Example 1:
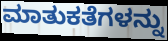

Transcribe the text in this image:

ಮಾತುಕತೆಗಳನ್ನು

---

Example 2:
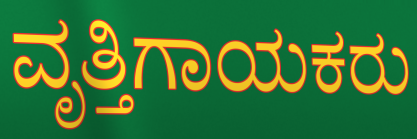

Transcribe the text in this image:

ವೃತ್ತಿಗಾಯಕರು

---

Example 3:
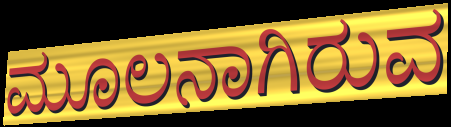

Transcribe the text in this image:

ಮೂಲನಾಗಿರುವ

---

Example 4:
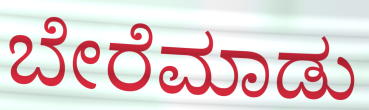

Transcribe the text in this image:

ಬೇರೆಮಾಡು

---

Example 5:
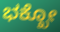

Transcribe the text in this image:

ಭಕ್ಖೋ